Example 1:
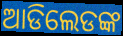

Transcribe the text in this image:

ଆଡିଲେଡଙ୍କ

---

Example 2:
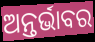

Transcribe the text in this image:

ଅନ୍ତର୍ଭାବର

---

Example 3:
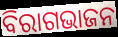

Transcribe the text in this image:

ବିରାଗଭାଜନ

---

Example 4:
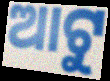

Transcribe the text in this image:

ଆଟୁ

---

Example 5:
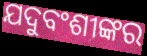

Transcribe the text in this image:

ଯଦୁବଂଶୀଙ୍କର